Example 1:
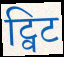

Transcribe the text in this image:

ट्विट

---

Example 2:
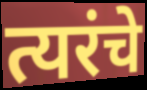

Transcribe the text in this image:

त्यरंचे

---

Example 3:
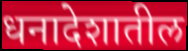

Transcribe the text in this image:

धनादेशातील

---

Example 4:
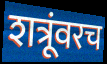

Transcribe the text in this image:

शत्रूंवरच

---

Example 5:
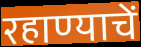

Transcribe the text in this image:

रहाण्याचें